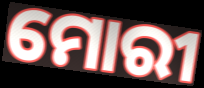
ମୋରୀ